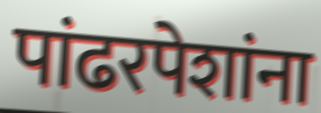
पांढरपेशांना